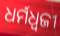
ଧର୍ମଧ୍ୱଜୀ